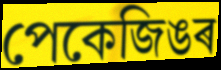
পেকেজিঙৰ